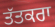
ਤੱਤਕਰਾ